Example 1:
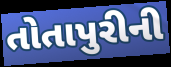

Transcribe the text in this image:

તોતાપુરીની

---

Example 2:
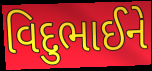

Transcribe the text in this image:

વિદુભાઈને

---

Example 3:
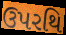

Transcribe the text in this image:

ઉપરથિ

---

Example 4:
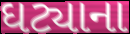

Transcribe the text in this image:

ઘટ્યાના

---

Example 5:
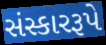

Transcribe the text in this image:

સંસ્કારરૂપે